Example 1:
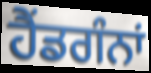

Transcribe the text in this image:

ਹੈਂਡਗੰਨਾਂ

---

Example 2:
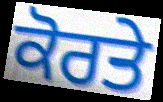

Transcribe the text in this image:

ਕੋਰਤੇ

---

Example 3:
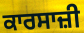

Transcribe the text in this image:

ਕਾਰਸਾਜ਼ੀ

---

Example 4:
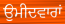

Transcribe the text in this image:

ਉੁਮੀਦਵਾਰਾਂ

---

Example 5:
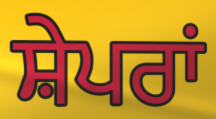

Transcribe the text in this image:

ਸ਼ੇਪਰਾਂ